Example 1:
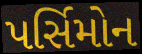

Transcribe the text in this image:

પર્સિમોન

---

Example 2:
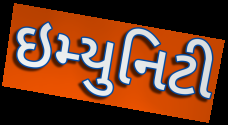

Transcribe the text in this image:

ઇમ્યુનિટી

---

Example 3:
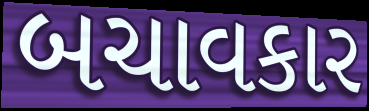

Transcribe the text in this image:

બચાવકાર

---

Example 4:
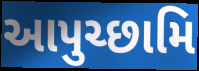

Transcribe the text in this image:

આપુચ્છામિ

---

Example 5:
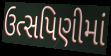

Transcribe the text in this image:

ઉત્સપિણીમાં